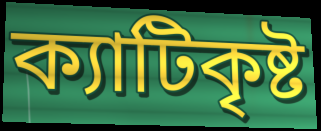
ক্যাটিকৃষ্ট